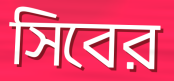
সিবের